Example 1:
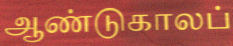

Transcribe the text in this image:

ஆண்டுகாலப்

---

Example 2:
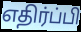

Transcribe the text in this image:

எதிர்ப்பி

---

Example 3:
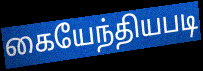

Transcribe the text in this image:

கையேந்தியபடி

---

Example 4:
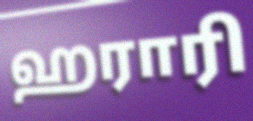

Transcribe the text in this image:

ஹராரி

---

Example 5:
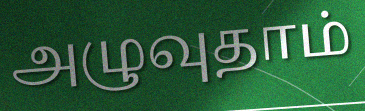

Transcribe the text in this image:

அழுவுதாம்